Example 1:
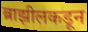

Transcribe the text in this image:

ब्राझीलकडून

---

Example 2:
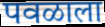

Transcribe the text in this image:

पवळाला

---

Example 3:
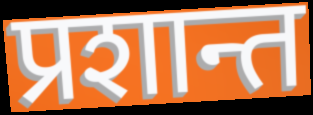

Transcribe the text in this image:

प्रशान्त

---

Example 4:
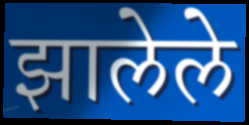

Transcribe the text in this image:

झालेले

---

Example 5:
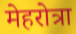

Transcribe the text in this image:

मेहरोत्रा